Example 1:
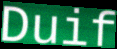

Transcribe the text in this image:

Duif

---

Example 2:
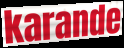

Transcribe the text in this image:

karande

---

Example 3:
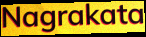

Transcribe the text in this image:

Nagrakata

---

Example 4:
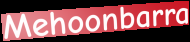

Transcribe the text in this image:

Mehoonbarra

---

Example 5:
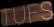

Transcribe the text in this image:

TUFS